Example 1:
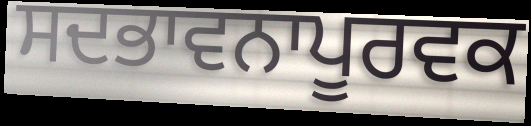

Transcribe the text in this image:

ਸਦਭਾਵਨਾਪੂਰਵਕ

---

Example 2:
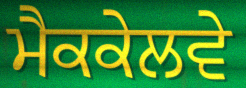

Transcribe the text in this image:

ਮੈਕਕੇਲਵੇ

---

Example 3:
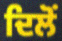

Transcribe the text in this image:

ਦਿਲੋਂ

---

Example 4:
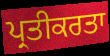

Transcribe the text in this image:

ਪ੍ਰਤੀਕਰਤਾ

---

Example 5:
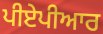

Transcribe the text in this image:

ਪੀਏਪੀਆਰ